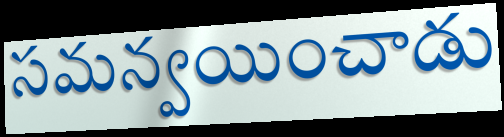
సమన్వయించాడు